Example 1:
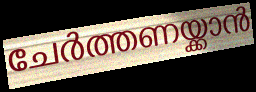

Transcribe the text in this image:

ചേർത്തണയ്ക്കാൻ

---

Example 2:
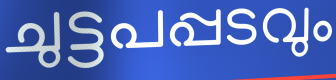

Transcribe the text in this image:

ചുട്ടപപ്പടവും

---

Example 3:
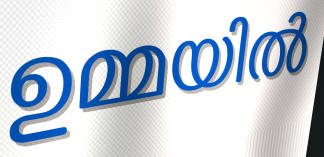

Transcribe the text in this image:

ഉമ്മയിൽ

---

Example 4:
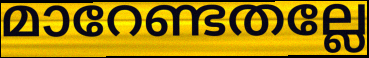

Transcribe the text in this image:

മാറേണ്ടതല്ലേ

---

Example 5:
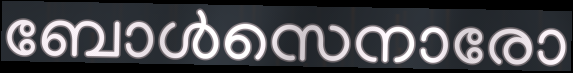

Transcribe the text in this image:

ബോൾസെനാരോ